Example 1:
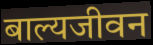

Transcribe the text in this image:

बाल्यजीवन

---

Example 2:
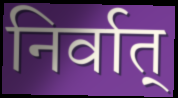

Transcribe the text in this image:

निर्वात्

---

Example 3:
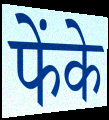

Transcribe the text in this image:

फेंके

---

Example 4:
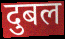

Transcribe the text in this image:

दुबल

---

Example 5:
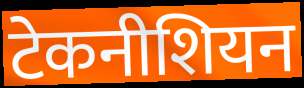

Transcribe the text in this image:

टेकनीशियन